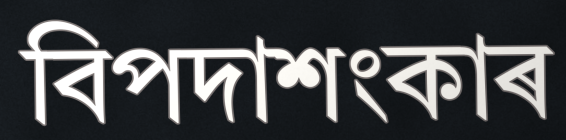
বিপদাশংকাৰ